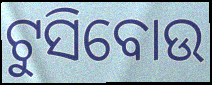
ଟୁସିବୋଉ